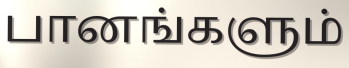
பானங்களும்